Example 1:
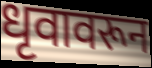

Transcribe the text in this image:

धृवावरून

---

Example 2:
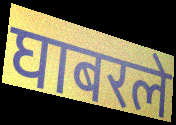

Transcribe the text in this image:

घाबरले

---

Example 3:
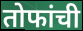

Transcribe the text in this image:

तोफांची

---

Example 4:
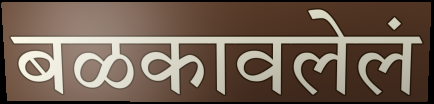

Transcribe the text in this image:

बळकावलेलं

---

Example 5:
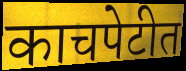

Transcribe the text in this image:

काचपेटीत